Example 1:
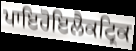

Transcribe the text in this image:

ਪਾਇਰੋਇਲੈਕਟ੍ਰਿਕ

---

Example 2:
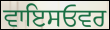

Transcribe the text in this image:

ਵਾਇਸਓਵਰ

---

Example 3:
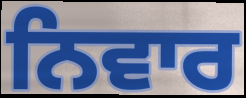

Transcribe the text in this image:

ਨਿਵਾਰ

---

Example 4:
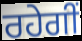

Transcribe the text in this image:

ਰਹੇਗੀਂ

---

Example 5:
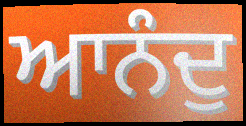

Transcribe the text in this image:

ਆਨੰਦੁ